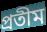
প্ৰতীম